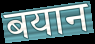
बयान